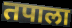
तपाला